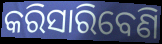
କରିସାରିବେଣି